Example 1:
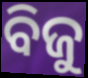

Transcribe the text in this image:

ବିଜୁ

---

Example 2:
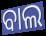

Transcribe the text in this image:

ବାଲ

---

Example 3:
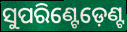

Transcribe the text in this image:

ସୁପରିଣ୍ଟେଡ଼େଣ୍ଟ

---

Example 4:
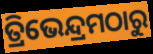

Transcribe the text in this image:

ତ୍ରିଭେନ୍ଦ୍ରମଠାରୁ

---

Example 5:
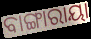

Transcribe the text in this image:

ବାଙ୍ଗାରାୟା